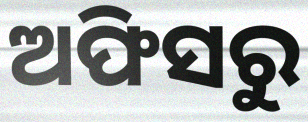
ଅଫିସରୁ